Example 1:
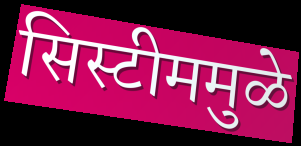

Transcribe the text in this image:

सिस्टीममुळे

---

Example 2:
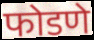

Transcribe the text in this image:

फोडणे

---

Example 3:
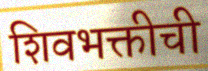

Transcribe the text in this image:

शिवभक्तीची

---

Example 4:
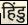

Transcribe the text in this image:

हिंडु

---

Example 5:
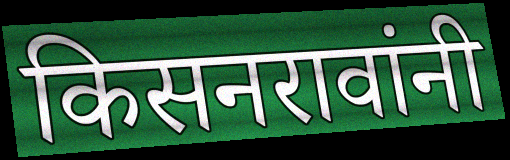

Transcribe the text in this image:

किसनरावांनी